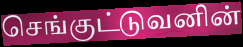
செங்குட்டுவனின்